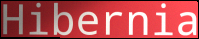
Hibernia